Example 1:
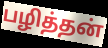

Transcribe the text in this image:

பழித்தன்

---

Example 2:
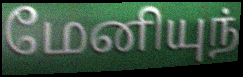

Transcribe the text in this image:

மேனியுந்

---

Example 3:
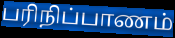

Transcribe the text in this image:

பரிநிப்பாணம்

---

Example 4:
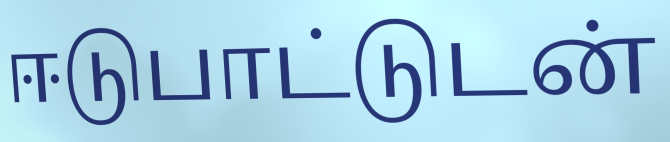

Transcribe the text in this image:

ஈடுபாட்டுடன்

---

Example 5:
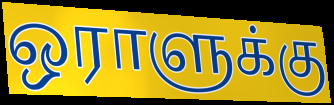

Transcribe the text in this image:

ஒராளுக்கு